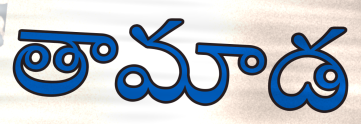
తామాడ